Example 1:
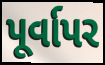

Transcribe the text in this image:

પૂર્વાપર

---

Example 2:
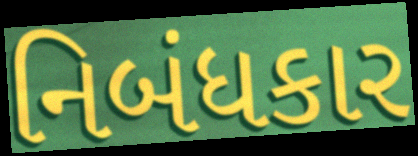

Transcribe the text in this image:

નિબંધકાર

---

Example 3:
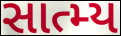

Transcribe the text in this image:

સાત્મ્ય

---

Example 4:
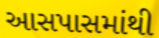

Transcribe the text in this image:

આસપાસમાંથી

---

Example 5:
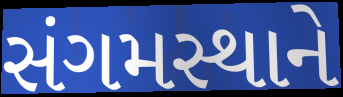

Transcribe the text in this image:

સંગમસ્થાને